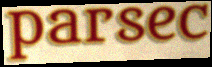
parsec